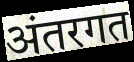
अंतरगत